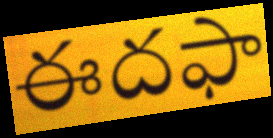
ఈదఫా